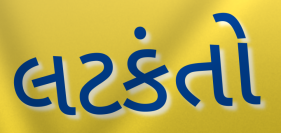
લટકંતો